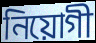
নিয়োগী